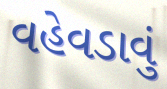
વહેવડાવું